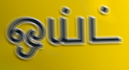
ஒய்ட்